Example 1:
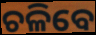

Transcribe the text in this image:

ଚଳିବେ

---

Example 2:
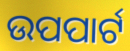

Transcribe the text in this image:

ଉପପାର୍ଟ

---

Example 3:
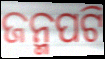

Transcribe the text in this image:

ଜନ୍ମପଟି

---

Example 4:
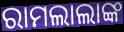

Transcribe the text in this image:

ରାମଲାଲାଙ୍କ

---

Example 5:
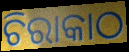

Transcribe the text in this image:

ଚିରାକାଠ